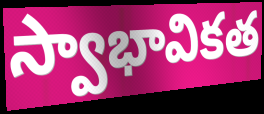
స్వాభావికత